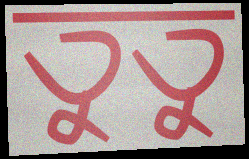
তুতু